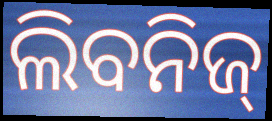
ଲିବନିଜ୍